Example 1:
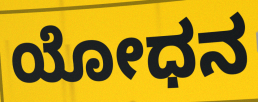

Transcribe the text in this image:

ಯೋಧನ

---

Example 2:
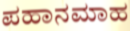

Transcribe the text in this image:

ಪಹಾನಮಾಹ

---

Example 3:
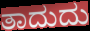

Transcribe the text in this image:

ತಾದುದು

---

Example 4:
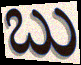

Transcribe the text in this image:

ಬು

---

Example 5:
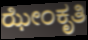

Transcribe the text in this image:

ಝೇಂಕೃತಿ